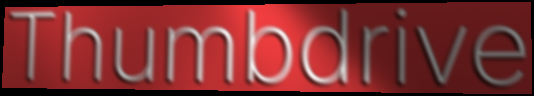
Thumbdrive